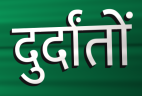
दुर्दांतों